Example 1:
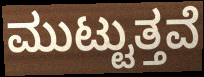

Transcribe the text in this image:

ಮುಟ್ಟುತ್ತವೆ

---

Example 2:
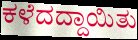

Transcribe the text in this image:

ಕಳೆದದ್ದಾಯಿತು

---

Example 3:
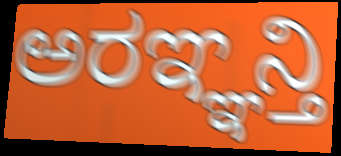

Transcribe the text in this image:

ಅರಞ್ಞನ್ತಿ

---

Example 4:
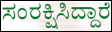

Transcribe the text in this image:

ಸಂರಕ್ಷಿಸಿದ್ದಾರೆ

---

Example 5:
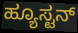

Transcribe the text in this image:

ಹ್ಯೂಸ್ಟನ್